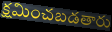
క్షమించబడతారు